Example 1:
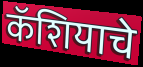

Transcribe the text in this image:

कॅशियाचे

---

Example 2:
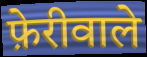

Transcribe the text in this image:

फ़ेरीवाले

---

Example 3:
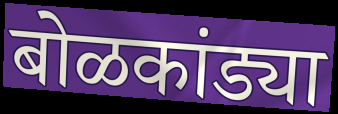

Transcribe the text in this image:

बोळकांड्या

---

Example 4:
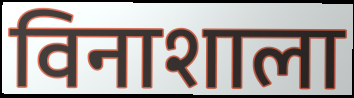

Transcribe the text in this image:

विनाशाला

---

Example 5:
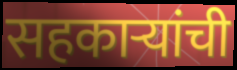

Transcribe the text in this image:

सहकाऱ्यांची